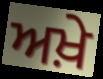
ਅਖ਼ੇ